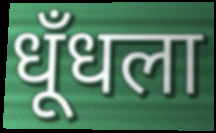
धूँधला